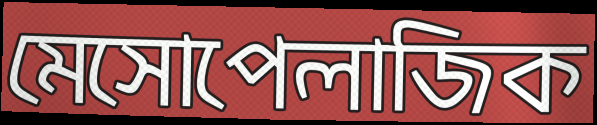
মেসোপেলাজিক